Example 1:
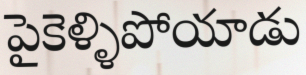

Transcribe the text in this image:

పైకెళ్ళిపోయాడు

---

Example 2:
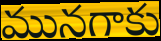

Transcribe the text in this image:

మునగాకు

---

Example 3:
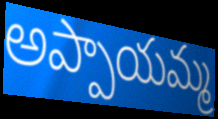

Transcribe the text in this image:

అప్పాయమ్మ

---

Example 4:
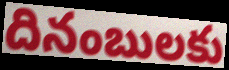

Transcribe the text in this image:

దినంబులకు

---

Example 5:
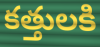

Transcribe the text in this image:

కత్తులకి